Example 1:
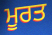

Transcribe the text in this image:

ਮੂਰਤ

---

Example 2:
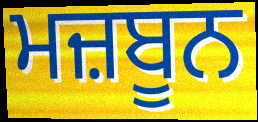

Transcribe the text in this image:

ਮਜ਼ਬੂਨ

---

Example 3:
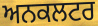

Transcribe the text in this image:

ਅਨਕਲਟਰ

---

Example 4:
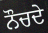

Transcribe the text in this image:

ਨੌਚਦੇ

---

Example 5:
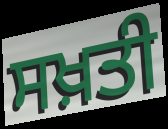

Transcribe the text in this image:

ਸਖ਼ਤੀ